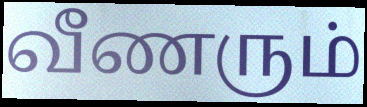
வீணரும்